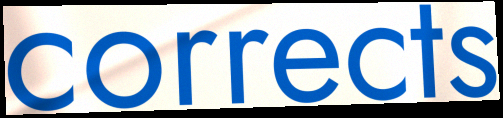
corrects